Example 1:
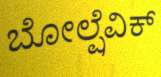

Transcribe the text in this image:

ಬೋಲ್ಷೆವಿಕ್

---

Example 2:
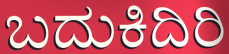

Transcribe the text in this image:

ಬದುಕಿದಿರಿ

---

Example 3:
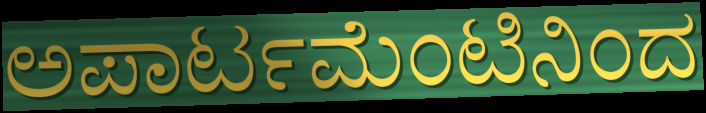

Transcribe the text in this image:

ಅಪಾರ್ಟಮೆಂಟಿನಿಂದ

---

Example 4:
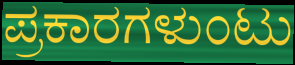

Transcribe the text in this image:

ಪ್ರಕಾರಗಳುಂಟು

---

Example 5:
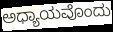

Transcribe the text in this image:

ಅಧ್ಯಾಯವೊಂದು